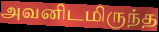
அவனிடமிருந்த